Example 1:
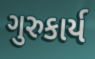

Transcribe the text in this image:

ગુરુકાર્ય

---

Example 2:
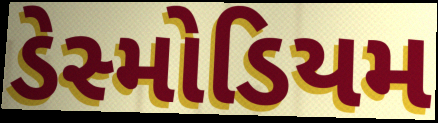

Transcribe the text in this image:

ડેસ્મોડિયમ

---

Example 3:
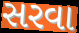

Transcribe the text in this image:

સરવા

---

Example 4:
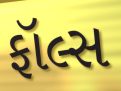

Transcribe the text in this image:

ફૉલ્સ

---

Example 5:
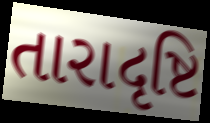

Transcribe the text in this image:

તારાદૃષ્ટિ